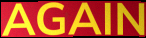
AGAIN